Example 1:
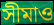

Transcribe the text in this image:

সীমাও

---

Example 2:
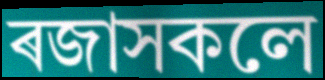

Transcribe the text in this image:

ৰজাসকলে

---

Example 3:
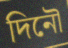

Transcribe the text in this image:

দিনৌ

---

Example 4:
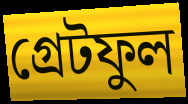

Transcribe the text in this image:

গ্ৰেটফুল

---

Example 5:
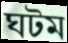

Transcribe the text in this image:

ঘটম